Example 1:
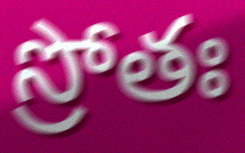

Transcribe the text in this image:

స్రోతః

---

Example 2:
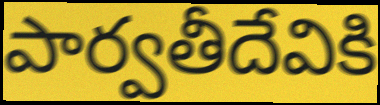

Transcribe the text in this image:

పార్వతీదేవికి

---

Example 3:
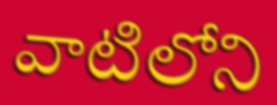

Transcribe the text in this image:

వాటిలోని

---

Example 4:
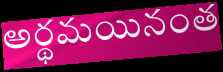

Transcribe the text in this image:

అర్థమయినంత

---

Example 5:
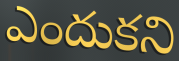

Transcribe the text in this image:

ఎందుకని